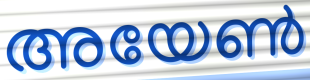
അയേൺ